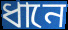
ধানে